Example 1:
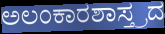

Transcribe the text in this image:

ಅಲಂಕಾರಶಾಸ್ತ್ರದ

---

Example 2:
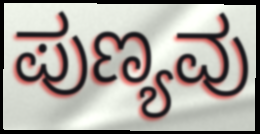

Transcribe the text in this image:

ಪುಣ್ಯವು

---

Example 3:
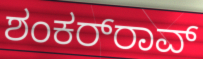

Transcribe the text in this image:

ಶಂಕರ್‌ರಾವ್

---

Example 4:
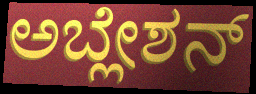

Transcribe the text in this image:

ಅಬ್ಲೇಶನ್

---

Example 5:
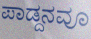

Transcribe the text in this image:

ಪಾಡ್ದನವೂ